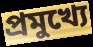
প্ৰমুখ্যে